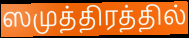
ஸமுத்திரத்தில்